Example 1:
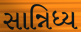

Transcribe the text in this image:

સાન્નિધ્ય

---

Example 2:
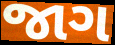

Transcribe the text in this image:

જાગ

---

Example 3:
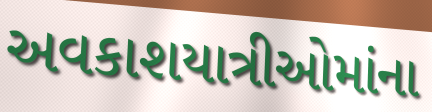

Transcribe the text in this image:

અવકાશયાત્રીઓમાંના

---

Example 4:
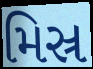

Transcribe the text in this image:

મિસ્ર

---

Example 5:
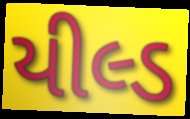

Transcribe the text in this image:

યીલ્ડ